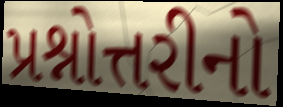
પ્રશ્નોત્તરીનો